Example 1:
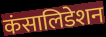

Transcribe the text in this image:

कंसालिडेशन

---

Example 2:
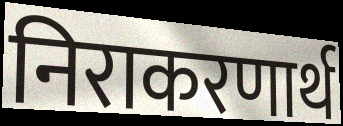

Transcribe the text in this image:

निराकरणार्थ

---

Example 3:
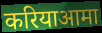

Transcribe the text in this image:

करियाआमा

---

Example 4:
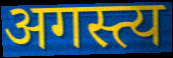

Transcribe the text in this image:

अगस्त्य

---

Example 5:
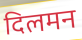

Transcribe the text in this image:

दिलमन